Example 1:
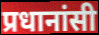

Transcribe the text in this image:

प्रधानांसी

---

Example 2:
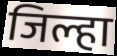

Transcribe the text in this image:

जिल्हा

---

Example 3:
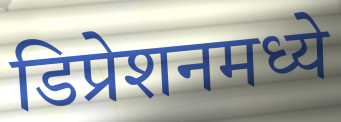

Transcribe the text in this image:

डिप्रेशनमध्ये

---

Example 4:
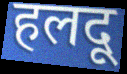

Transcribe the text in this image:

हलदू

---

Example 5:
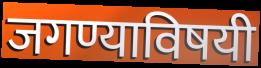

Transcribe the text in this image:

जगण्याविषयी